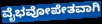
ವೈಭವೋಪೇತವಾಗಿ